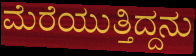
ಮೆರೆಯುತ್ತಿದ್ದನು